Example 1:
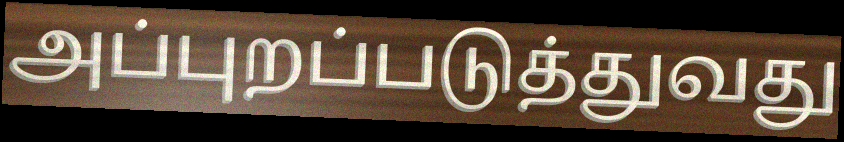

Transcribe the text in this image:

அப்புறப்படுத்துவது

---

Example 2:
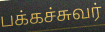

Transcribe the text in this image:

பக்கச்சுவர்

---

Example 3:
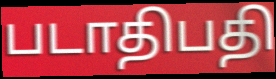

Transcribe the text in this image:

படாதிபதி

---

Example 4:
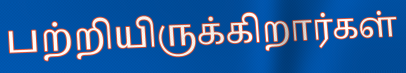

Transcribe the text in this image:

பற்றியிருக்கிறார்கள்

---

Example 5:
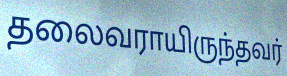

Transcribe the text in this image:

தலைவராயிருந்தவர்